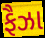
ફૈઝા